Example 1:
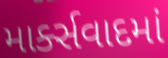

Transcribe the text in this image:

માર્ક્સવાદમાં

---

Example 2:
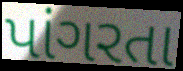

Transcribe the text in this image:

પાંગરતા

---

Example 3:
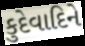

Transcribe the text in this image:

કુદેવાદિને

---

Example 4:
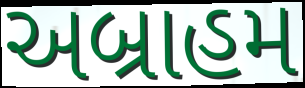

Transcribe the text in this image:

અબ્રાહમ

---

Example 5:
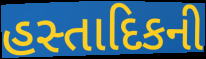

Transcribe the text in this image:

હસ્તાદિકની